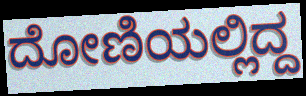
ದೋಣಿಯಲ್ಲಿದ್ದ